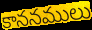
కాననములు